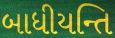
બાધીયન્તિ